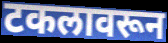
टकलावरून